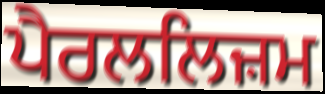
ਪੈਰਲਲਿਜ਼ਮ